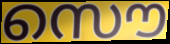
സൌ